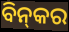
ବିନ୍‌କର